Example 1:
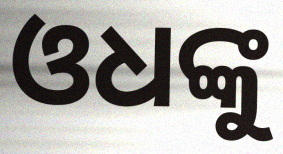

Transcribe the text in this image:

ଓଧଙ୍କୁ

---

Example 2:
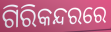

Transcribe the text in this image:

ଗିରିକନ୍ଦରରେ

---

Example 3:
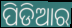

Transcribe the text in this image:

ପିଡିଆର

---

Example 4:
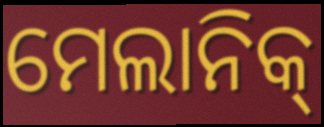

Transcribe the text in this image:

ମେଲାନିକ୍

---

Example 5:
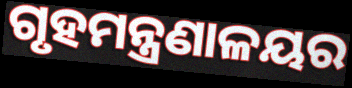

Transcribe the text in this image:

ଗୃହମନ୍ତ୍ରଣାଳୟର